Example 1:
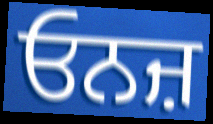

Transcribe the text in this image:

ਓਨਜ਼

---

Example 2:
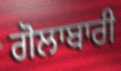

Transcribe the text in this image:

ਗੋਲਾਬਾਰੀ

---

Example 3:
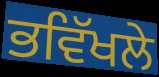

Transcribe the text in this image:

ਭਵਿੱਖਲੇ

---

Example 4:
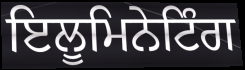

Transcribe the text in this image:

ਇਲੂਮਿਨੇਟਿੰਗ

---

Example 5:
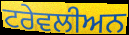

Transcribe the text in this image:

ਟਰੇਵਲੀਅਨ